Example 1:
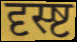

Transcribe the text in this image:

दृस्ष्ट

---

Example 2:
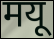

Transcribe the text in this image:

मयू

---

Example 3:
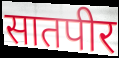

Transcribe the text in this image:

सातपीर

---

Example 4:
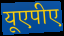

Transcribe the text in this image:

यूएपीए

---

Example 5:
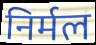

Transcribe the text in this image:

निर्मल